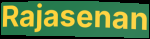
Rajasenan